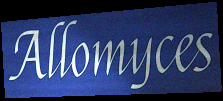
Allomyces